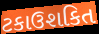
ટકાઉશકિત